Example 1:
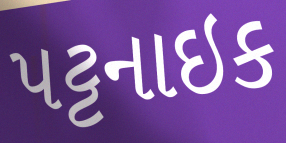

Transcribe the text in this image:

પટ્ટનાઇક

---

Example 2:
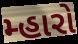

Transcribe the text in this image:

મ્હારો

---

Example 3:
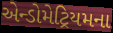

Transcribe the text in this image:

એન્ડોમેટ્રિયમના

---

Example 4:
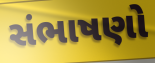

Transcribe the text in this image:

સંભાષણો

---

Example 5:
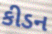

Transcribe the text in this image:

કીડન